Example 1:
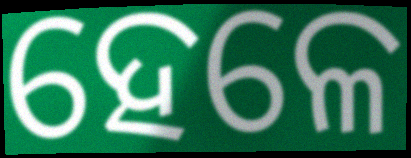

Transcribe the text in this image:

ହେଳେ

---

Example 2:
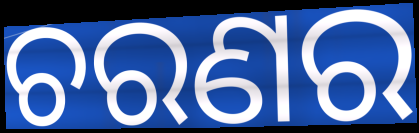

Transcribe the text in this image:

ଚରଣର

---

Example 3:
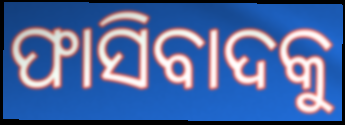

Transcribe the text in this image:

ଫାସିବାଦକୁ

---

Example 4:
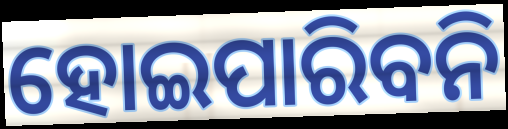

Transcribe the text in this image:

ହୋଇପାରିବନି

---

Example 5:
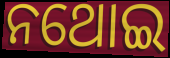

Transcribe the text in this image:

ନଥୋଇ